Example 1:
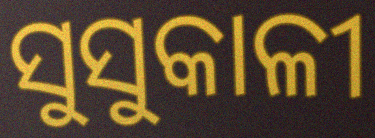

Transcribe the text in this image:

ସୁସୁକାଳୀ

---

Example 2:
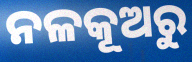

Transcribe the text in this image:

ନଳକୂଅରୁ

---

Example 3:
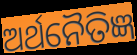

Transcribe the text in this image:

ଅର୍ଥନୈତିଜ୍ଞ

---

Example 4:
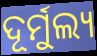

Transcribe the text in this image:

ଦୂର୍ମୁଲ୍ୟ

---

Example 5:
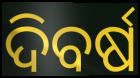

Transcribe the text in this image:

ଦିବର୍ଷ